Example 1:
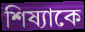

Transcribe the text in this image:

শিষ্যাকে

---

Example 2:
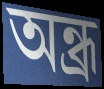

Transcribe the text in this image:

অন্ধ্র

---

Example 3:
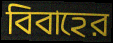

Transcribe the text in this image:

বিবাহের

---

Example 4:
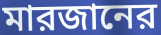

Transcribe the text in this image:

মারজানের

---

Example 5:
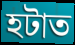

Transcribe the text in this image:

হটাত